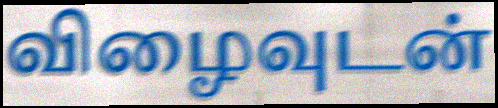
விழைவுடன்